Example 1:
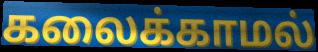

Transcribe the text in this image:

கலைக்காமல்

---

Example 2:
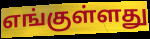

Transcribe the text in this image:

எங்குள்ளது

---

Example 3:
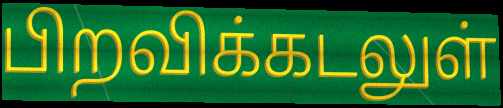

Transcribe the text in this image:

பிறவிக்கடலுள்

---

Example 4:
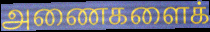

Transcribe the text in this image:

அணைகளைக்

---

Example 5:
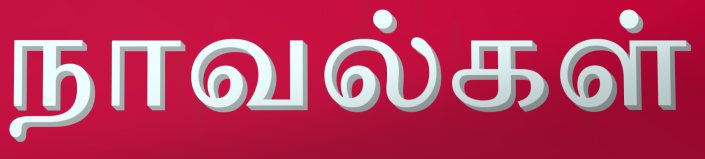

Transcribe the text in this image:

நாவல்கள்